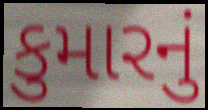
કુમારનું